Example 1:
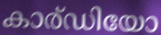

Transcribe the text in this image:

കാര്ഡിയോ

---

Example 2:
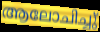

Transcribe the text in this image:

ആലോചിച്ചു്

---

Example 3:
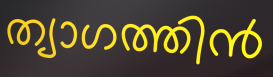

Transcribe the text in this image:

ത്യാഗത്തിൻ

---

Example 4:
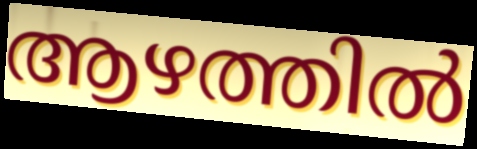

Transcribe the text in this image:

ആഴത്തിൽ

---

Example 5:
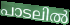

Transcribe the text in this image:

പാടലിൽ